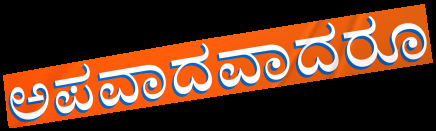
ಅಪವಾದವಾದರೂ